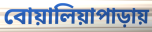
বোয়ালিয়াপাড়ায়